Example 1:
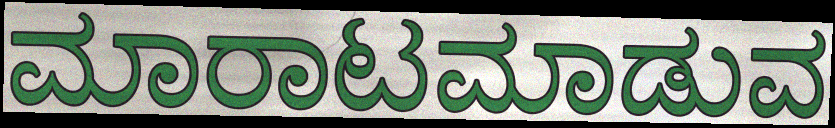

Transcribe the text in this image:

ಮಾರಾಟಮಾಡುವ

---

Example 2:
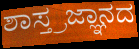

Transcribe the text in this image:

ಶಾಸ್ತ್ರಜ್ಞಾನದ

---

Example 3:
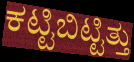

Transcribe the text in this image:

ಕಟ್ಟಿಬಿಟ್ಟಿತ್ತು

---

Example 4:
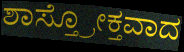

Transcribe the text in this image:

ಶಾಸ್ತ್ರೋಕ್ತವಾದ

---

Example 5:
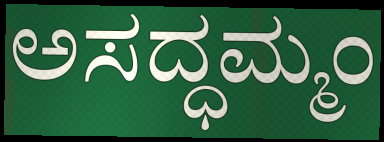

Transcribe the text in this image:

ಅಸದ್ಧಮ್ಮಂ